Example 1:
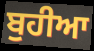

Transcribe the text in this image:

ਬੁਹੀਆ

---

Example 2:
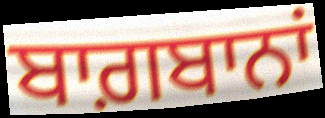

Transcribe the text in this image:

ਬਾਗ਼ਬਾਨਾਂ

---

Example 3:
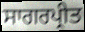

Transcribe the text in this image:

ਸਾਗਰਪ੍ਰੀਤ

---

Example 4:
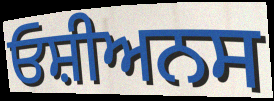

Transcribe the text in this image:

ਓਸ਼ੀਅਨਸ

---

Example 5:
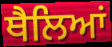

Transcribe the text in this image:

ਥੈਲਿਆਂ